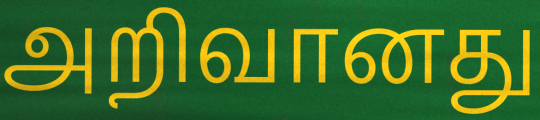
அறிவானது